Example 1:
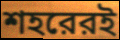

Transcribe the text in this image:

শহরেরই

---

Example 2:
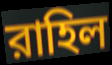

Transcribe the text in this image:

রাহিল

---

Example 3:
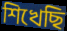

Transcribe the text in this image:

শিখেছি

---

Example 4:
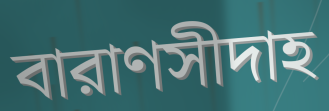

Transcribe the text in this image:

বারাণসীদাহ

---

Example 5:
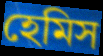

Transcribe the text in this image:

হেমিস